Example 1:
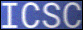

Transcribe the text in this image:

ICSC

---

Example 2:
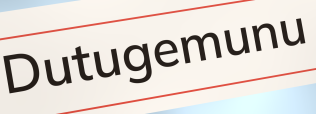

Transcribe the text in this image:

Dutugemunu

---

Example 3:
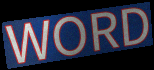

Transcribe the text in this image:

WORD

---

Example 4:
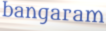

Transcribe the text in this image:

bangaram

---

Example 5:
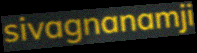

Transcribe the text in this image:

sivagnanamji